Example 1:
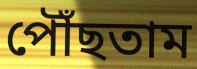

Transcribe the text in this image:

পৌঁছতাম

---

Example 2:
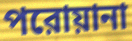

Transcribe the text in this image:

পরোয়ানা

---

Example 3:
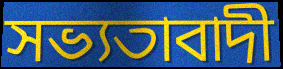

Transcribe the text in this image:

সভ্যতাবাদী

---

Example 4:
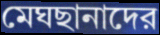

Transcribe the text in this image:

মেঘছানাদের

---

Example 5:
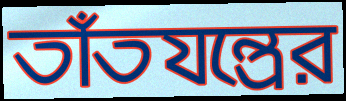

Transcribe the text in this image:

তাঁতযন্ত্রের